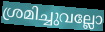
ശ്രമിച്ചുവല്ലോ